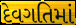
દેવગતિમાં